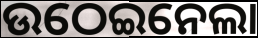
ଉଠେଇନେଲା